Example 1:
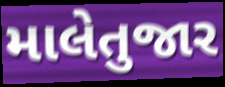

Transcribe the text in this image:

માલેતુજાર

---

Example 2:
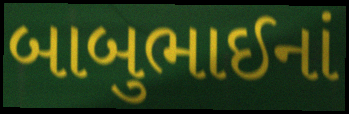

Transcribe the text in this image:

બાબુભાઈનાં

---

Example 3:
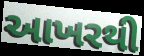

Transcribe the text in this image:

આખરથી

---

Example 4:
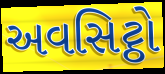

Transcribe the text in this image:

અવસિટ્ઠો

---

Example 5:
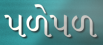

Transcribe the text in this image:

પળેપળ